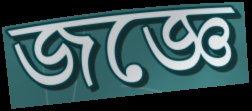
জজ্ঞে